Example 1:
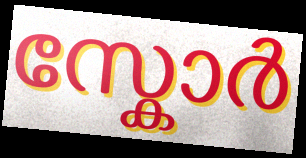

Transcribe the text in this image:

സ്കോർ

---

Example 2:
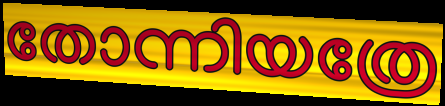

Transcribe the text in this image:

തോന്നിയത്രേ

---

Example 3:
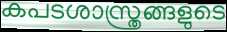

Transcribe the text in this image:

കപടശാസ്ത്രങ്ങളുടെ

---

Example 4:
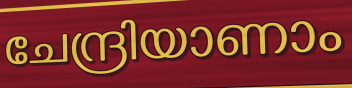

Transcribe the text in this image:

ചേന്ദ്രിയാണാം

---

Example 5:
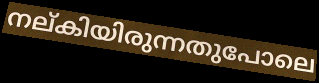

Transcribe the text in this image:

നല്കിയിരുന്നതുപോലെ